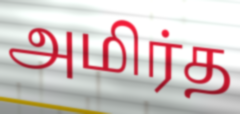
அமிர்த